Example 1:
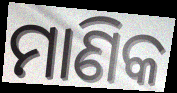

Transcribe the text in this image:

ମାଣିକ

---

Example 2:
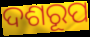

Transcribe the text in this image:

ଦଶରୂପ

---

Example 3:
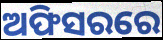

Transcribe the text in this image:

ଅଫିସରରେ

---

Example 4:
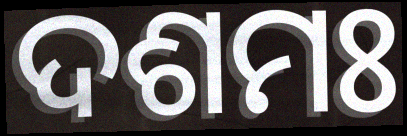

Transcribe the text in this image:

ଦଶମଃ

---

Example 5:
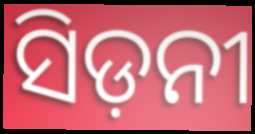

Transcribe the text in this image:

ସିଡ଼ନୀ